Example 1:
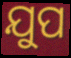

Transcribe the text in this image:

ଯୁପ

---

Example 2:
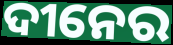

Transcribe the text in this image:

ଦୀନେର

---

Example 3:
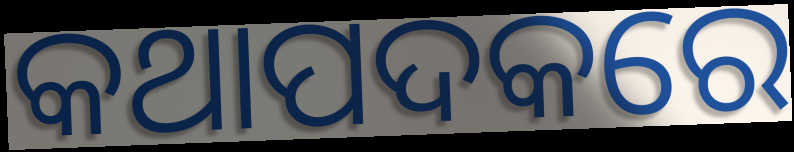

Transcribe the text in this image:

କଥାପଦକରେ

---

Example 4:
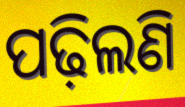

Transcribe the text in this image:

ପଢ଼ିଲଣି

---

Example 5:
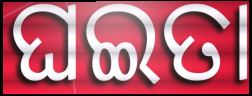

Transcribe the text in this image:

ଘଇତା